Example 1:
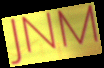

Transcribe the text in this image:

JNM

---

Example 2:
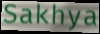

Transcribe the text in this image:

Sakhya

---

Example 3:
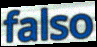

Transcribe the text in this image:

falso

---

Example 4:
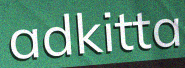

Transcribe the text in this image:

adkitta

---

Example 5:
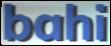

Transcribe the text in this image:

bahi